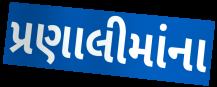
પ્રણાલીમાંના